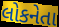
લોકનેતા